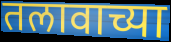
तलावाच्या